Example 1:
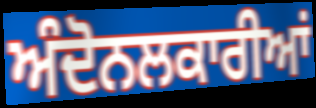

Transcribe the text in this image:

ਅੰਦੋਨਲਕਾਰੀਆਂ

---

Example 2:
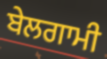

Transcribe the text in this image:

ਬੇਲਗਾਮੀ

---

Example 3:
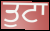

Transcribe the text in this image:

ਤੁਟਾ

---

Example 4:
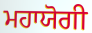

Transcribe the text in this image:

ਮਹਾਯੋਗੀ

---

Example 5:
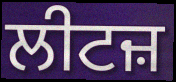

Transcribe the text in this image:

ਲੀਟਜ਼